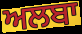
ਅਲਬਾ